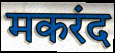
मकरंद